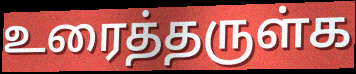
உரைத்தருள்க